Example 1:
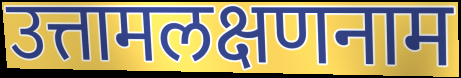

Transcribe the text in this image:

उत्तामलक्षणनाम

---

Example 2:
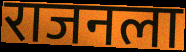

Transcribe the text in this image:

राजनला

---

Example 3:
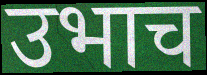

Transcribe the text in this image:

उभाच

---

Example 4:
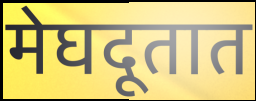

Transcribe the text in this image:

मेघदूतात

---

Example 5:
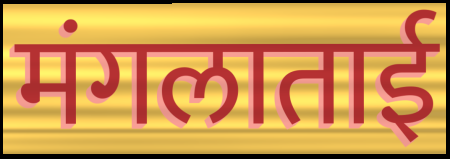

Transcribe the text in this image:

मंगलाताई